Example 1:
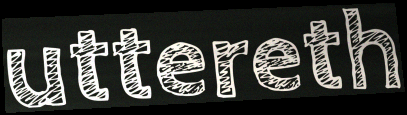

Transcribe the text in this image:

uttereth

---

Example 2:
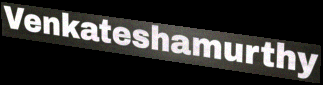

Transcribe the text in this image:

Venkateshamurthy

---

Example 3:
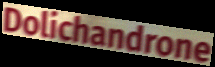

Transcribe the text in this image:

Dolichandrone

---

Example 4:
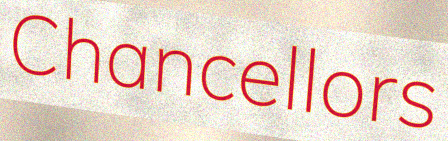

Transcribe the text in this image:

Chancellors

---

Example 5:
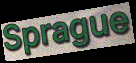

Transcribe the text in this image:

Sprague